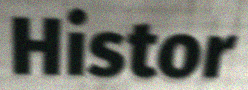
Histor